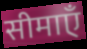
सीमाएँ